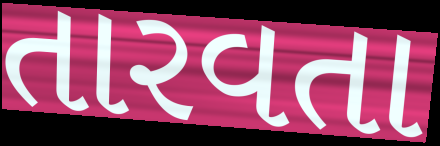
તારવતા